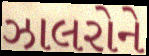
ઝાલરોને